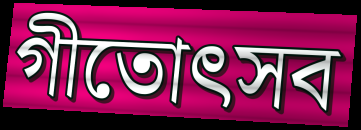
গীতোৎসব